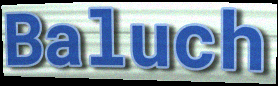
Baluch